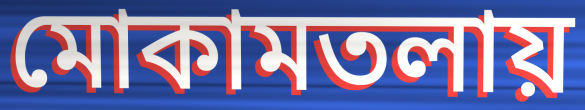
মোকামতলায়